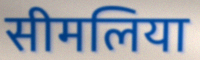
सीमलिया